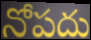
నోపదు